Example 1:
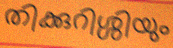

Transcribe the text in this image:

തിക്കുറിശ്ശിയും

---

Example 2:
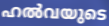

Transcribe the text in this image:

ഹൽവയുടെ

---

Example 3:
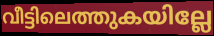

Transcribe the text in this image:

വീട്ടിലെത്തുകയില്ലേ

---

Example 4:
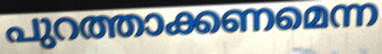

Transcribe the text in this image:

പുറത്താക്കണമെന്ന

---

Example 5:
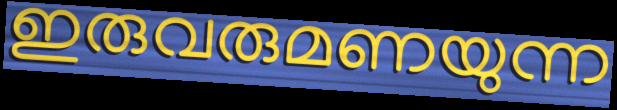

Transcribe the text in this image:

ഇരുവരുമണയുന്ന